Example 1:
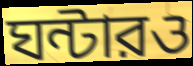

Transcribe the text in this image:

ঘন্টারও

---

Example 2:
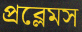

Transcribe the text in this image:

প্রব্লেমস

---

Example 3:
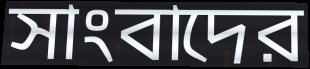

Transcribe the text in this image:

সাংবাদের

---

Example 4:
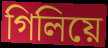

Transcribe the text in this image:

গিলিয়ে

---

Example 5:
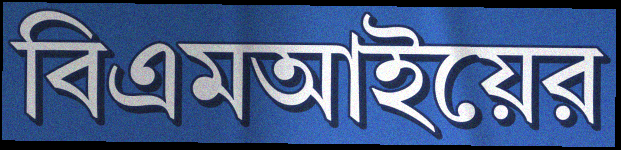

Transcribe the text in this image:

বিএমআইয়ের